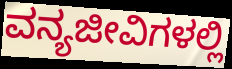
ವನ್ಯಜೀವಿಗಳಲ್ಲಿ